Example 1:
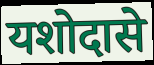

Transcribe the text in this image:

यशोदासे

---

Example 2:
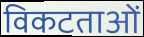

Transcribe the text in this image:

विकटताओं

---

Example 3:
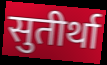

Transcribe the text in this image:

सुतीर्था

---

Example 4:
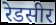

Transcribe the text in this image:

रेडसीर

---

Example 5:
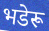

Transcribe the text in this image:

भडेरू